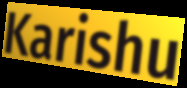
Karishu